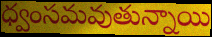
ధ్వంసమవుతున్నాయి